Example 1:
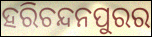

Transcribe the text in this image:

ହରିଚନ୍ଦନପୁରର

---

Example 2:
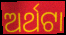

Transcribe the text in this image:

ଅର୍ଥଟା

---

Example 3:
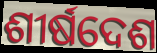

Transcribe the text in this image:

ଶୀର୍ଷଦେଶ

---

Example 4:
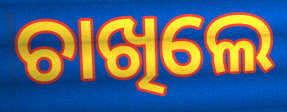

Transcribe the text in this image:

ଚାଖିଲେ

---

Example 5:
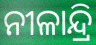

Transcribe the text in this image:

ନୀଳାନ୍ଦ୍ରି